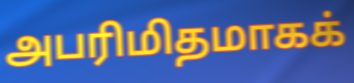
அபரிமிதமாகக்